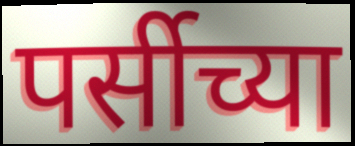
पर्सीच्या